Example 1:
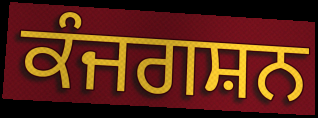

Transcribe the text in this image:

ਕੰਜਗਸ਼ਨ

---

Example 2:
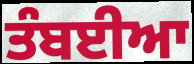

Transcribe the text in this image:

ਤੰਬਈਆ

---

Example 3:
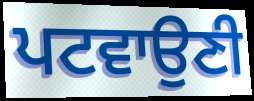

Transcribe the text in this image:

ਪਟਵਾਉਣੀ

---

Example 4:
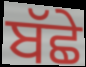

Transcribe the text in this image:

ਬੱਛੇ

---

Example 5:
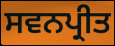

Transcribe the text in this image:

ਸਵਨਪ੍ਰੀਤ